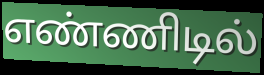
எண்ணிடில்